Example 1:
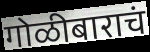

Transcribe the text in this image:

गोळीबाराचं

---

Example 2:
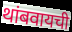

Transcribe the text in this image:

थांबवायची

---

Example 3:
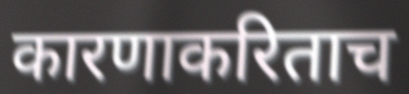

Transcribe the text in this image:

कारणाकरिताच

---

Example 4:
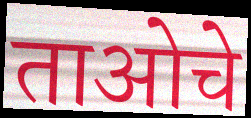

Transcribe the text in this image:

ताओचे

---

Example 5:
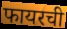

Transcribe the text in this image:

फायरची